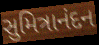
સુમિત્રાનંદન